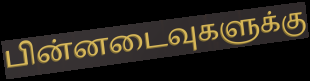
பின்னடைவுகளுக்கு